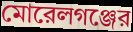
মোরেলগঞ্জের